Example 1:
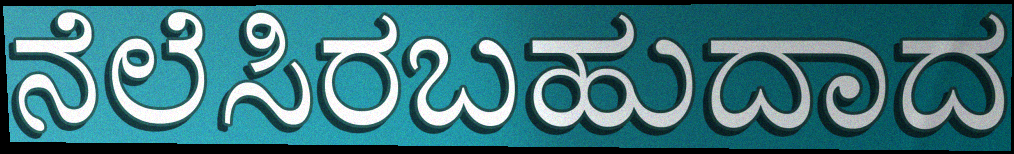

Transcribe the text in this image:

ನೆಲೆಸಿರಬಹುದಾದ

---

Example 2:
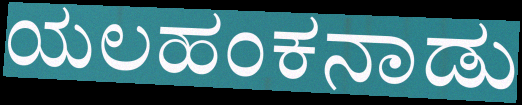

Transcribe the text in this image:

ಯಲಹಂಕನಾಡು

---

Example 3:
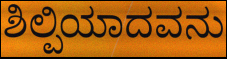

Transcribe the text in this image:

ಶಿಲ್ಪಿಯಾದವನು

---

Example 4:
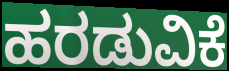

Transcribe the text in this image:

ಹರಡುವಿಕೆ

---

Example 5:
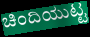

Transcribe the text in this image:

ಚಿಂದಿಯುಟ್ಟ